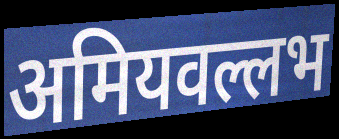
अमियवल्लभ